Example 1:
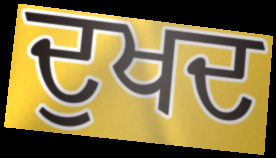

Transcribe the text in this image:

ਦੁਖਦ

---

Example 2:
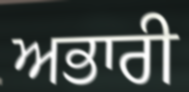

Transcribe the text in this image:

ਅਭਾਰੀ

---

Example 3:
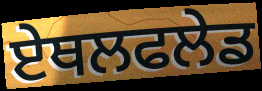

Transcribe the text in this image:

ਏਥਲਫਲੇਡ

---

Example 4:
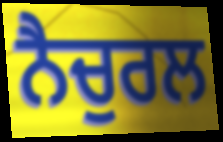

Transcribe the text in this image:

ਨੈਚੁਰਲ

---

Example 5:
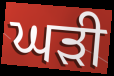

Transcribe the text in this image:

ਘਡ਼ੀ